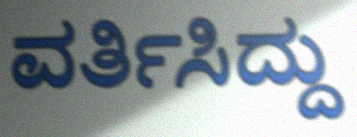
ವರ್ತಿಸಿದ್ದು